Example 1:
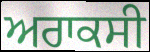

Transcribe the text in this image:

ਅਰਾਕਸੀ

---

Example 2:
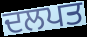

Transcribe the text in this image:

ਦਲਪਤ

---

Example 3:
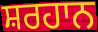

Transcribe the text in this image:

ਸ਼ਰਹਾਨ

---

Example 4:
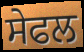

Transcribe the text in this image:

ਸੇਫਲ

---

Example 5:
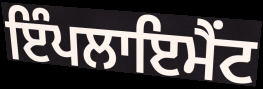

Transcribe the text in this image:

ਇੰਪਲਾਇਮੈਂਟ